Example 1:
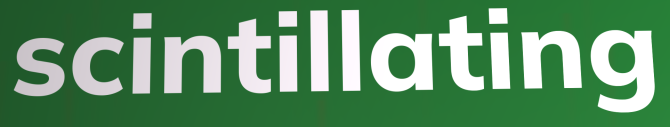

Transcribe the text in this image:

scintillating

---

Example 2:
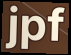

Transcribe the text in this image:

jpf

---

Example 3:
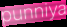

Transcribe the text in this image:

punniya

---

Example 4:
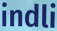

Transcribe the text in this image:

indli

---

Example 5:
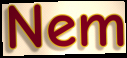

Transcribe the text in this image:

Nem